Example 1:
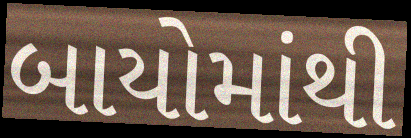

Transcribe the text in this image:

બાયોમાંથી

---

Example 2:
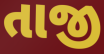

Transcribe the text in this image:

તાજી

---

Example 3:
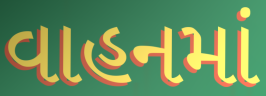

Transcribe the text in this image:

વાહનમાં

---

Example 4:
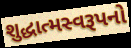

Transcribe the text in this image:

શુદ્ધાત્મસ્વરૂપનો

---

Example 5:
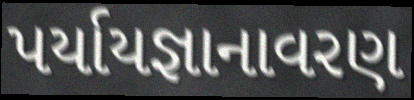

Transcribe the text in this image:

પર્યાયજ્ઞાનાવરણ